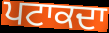
ਪਟਾਕਦਾ